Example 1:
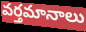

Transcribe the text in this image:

వర్తమానాలు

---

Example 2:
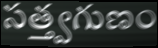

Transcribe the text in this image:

సత్త్వగుణం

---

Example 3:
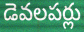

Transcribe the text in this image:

డెవలపర్లు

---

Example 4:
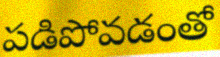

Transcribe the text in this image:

పడిపోవడంతో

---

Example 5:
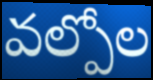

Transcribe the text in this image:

వల్పోల